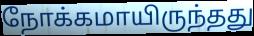
நோக்கமாயிருந்தது